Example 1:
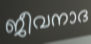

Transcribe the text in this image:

ജീവനാദ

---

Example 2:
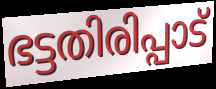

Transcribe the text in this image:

ഭട്ടതിരിപ്പാട്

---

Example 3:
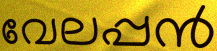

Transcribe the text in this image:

വേലപ്പൻ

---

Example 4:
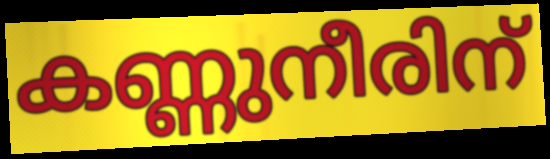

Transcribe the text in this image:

കണ്ണുനീരിന്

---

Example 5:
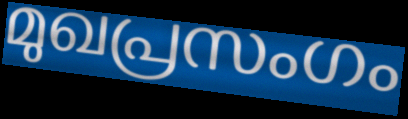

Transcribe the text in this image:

മുഖപ്രസംഗം